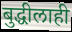
बुद्धीलाही